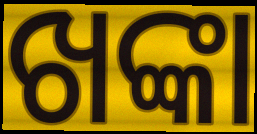
ଖଙ୍କା